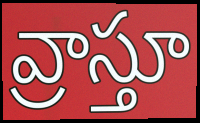
వ్రాస్తూ